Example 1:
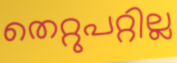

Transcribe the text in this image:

തെറ്റുപറ്റില്ല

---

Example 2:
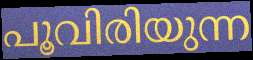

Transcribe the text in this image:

പൂവിരിയുന്ന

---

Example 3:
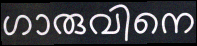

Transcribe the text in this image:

ഗാരുവിനെ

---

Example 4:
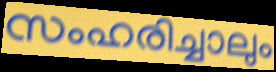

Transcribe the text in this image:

സംഹരിച്ചാലും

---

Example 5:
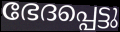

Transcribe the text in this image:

ഭേദപ്പെട്ടു